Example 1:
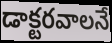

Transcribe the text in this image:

డాక్టరవాలనే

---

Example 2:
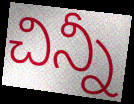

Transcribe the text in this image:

చిన్నీ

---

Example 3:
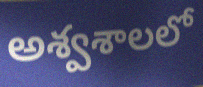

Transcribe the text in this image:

అశ్వశాలలో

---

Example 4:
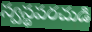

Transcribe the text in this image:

స్వస్థపరచుడి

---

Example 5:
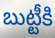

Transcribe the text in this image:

బుట్టీకి